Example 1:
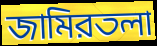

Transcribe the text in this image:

জামিরতলা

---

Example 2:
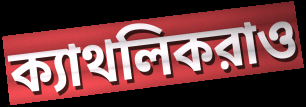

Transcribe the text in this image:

ক্যাথলিকরাও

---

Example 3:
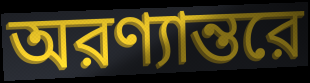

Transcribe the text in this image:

অরণ্যান্তরে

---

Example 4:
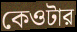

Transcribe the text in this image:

কেওটার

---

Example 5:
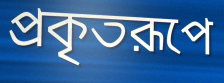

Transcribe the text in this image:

প্রকৃতরূপে